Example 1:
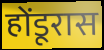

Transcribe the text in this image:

होंडूरास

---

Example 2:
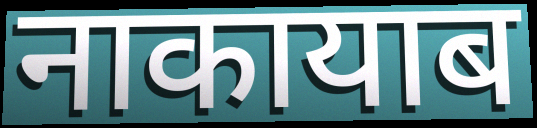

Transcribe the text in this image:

नाकायाब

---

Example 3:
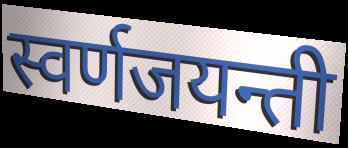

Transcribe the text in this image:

स्वर्णजयन्ती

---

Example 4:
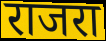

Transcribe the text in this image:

राजरा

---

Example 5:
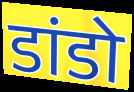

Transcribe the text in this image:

डांडो